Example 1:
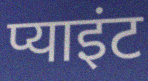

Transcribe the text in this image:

प्याइंट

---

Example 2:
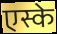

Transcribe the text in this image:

एस्के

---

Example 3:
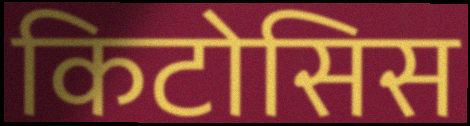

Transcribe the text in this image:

किटोसिस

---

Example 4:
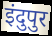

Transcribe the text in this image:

इंदुपुर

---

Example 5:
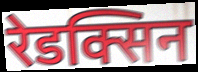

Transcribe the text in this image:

रेडक्सिन